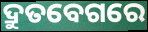
ଦ୍ରୁତବେଗରେ